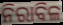
ନିରାବିଳ